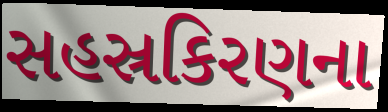
સહસ્રકિરણના